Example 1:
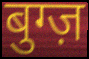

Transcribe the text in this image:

बुग्ज़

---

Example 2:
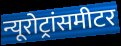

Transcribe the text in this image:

न्यूरोट्रांसमीटर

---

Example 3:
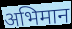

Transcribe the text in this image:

अभिमान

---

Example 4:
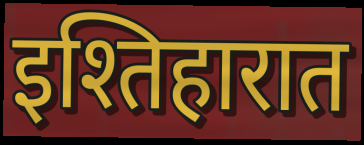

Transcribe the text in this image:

इश्तिहारात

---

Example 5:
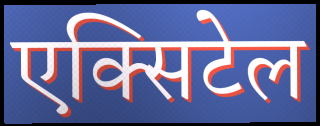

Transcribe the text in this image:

एक्सिटेल